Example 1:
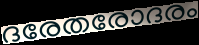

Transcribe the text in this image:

ദരേതരോദരം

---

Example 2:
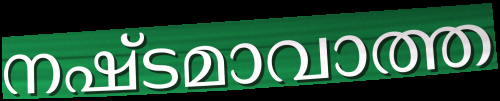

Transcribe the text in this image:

നഷ്ടമാവാത്ത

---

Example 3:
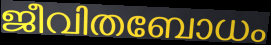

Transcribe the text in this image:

ജീവിതബോധം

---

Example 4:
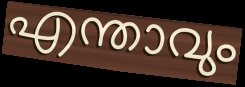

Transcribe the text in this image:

എന്താവും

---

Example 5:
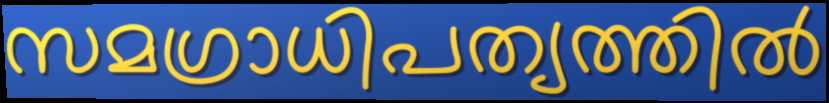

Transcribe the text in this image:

സമഗ്രാധിപത്യത്തിൽ